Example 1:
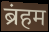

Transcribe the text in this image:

ब्रंहम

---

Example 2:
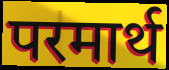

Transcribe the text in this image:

परमार्थ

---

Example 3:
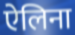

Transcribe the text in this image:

ऐलिना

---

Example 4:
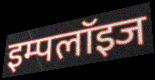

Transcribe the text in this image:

इम्पलॉइज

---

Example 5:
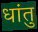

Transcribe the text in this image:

धांतु